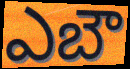
ఎబౌ